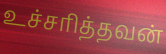
உச்சரித்தவன்